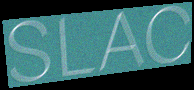
SLAC